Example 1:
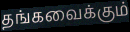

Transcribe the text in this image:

தங்கவைக்கும்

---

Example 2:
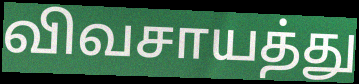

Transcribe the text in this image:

விவசாயத்து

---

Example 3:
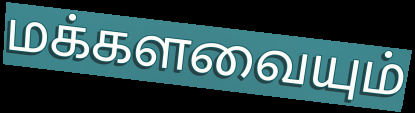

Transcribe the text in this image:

மக்களவையும்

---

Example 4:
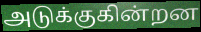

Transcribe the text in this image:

அடுக்குகின்றன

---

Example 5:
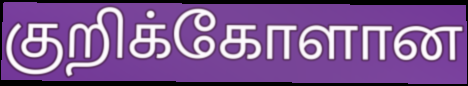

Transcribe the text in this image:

குறிக்கோளான